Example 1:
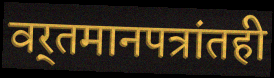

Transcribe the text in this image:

वर्तमानपत्रांतही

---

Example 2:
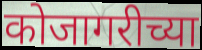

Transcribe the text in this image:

कोजागरीच्या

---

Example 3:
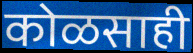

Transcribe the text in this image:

कोळसाही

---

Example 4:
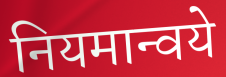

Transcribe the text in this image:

नियमान्वये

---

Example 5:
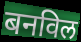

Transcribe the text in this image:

बनविल